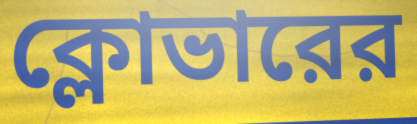
ক্লোভারের